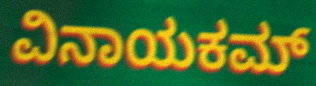
ವಿನಾಯಕಮ್